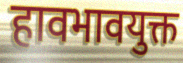
हावभावयुक्त